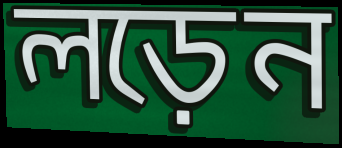
লড়েন